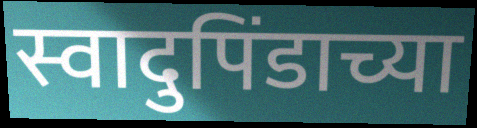
स्वादुपिंडाच्या